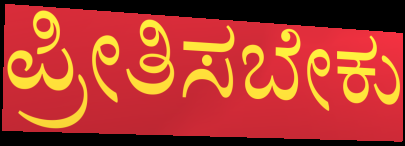
ಪ್ರೀತಿಸಬೇಕು